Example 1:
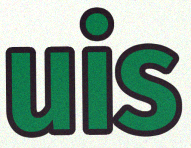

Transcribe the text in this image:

uis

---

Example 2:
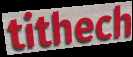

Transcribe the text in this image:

tithech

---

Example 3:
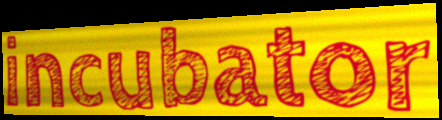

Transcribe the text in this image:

incubator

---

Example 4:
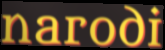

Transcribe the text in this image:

narodi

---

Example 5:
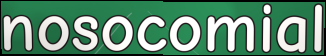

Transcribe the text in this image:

nosocomial